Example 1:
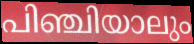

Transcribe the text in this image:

പിഞ്ചിയാലും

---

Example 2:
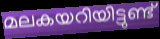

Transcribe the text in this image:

മലകയറിയിട്ടുണ്ട്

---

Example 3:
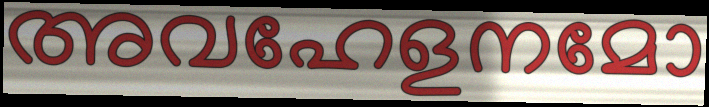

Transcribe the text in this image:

അവഹേളനമോ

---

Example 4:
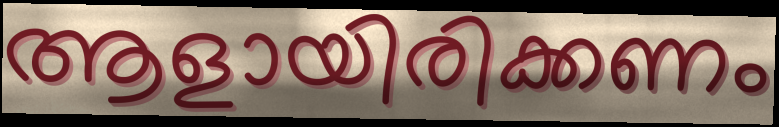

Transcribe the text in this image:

ആളായിരിക്കണം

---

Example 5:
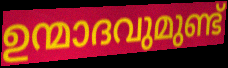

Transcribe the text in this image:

ഉന്മാദവുമുണ്ട്